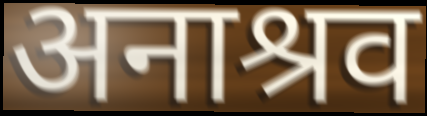
अनाश्रव